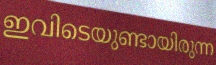
ഇവിടെയുണ്ടായിരുന്ന